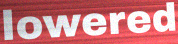
lowered